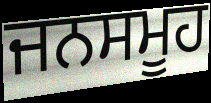
ਜਨਸਮੂਹ